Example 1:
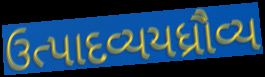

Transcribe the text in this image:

ઉત્પાદવ્યયધ્રૌવ્ય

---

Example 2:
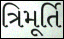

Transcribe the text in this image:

ત્રિમૂર્તિ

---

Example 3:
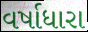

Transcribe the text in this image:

વર્ષાધારા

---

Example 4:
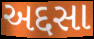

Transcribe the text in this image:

અદ્દસા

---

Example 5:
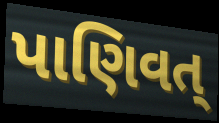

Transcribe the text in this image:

પાણિવત્